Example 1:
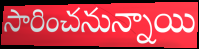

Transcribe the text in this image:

సారించనున్నాయి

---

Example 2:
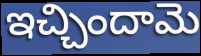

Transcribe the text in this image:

ఇచ్చిందామె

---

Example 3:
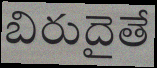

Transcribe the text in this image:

బిరుదైతే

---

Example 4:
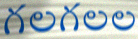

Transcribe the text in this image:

గలగలల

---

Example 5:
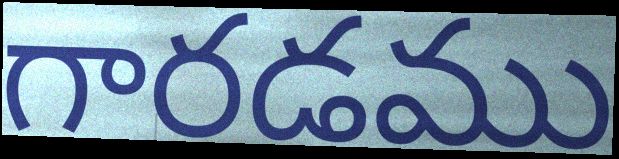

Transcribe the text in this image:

గారడము